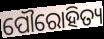
ପୌରୋହିତ୍ୟ